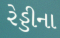
રેડ્ડીના